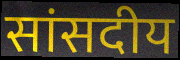
सांसदीय